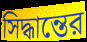
সিদ্ধান্তের